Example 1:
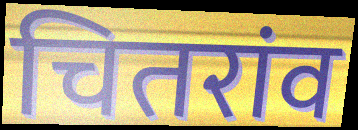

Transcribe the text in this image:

चितरांव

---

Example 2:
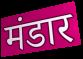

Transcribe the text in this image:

मंडार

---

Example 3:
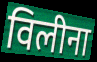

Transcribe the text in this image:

विलीना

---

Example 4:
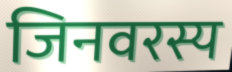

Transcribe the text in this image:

जिनवरस्य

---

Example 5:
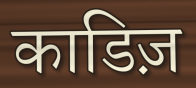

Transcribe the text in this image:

काडिज़